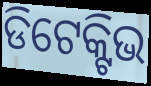
ଡିଟେକ୍ଟିଭ